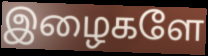
இழைகளே